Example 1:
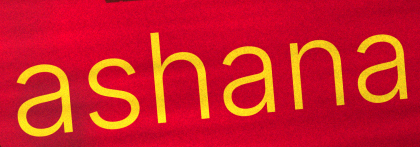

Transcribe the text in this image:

ashana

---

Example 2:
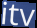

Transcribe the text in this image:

itv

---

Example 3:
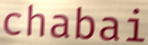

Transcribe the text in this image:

chabai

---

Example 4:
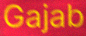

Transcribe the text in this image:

Gajab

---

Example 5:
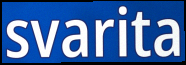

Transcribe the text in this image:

svarita